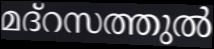
മദ്റസത്തുൽ